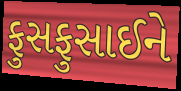
ફુસફુસાઈને